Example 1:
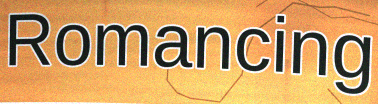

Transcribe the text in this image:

Romancing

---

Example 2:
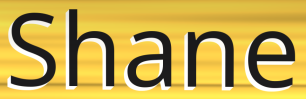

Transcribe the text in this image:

Shane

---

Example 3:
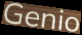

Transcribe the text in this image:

Genio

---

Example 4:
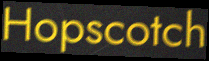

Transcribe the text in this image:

Hopscotch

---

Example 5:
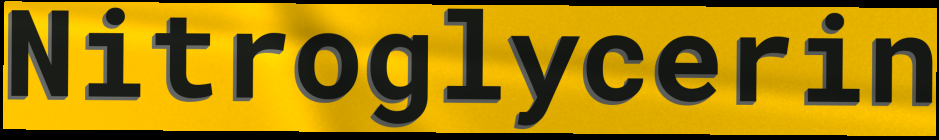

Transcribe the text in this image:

Nitroglycerin